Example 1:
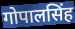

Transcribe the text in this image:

गोपालसिंह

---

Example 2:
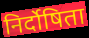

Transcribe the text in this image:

निर्दोषिता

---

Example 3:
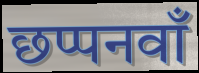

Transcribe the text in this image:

छप्पनवाँ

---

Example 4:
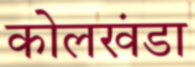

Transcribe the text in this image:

कोलखंडा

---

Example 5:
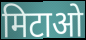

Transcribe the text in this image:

मिटाओ